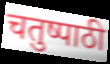
चतुष्पाठी